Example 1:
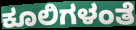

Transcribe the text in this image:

ಕೂಲಿಗಳಂತೆ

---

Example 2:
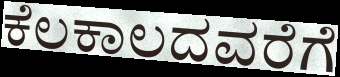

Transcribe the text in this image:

ಕೆಲಕಾಲದವರೆಗೆ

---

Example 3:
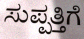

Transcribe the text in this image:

ಸುಪ್ಪತ್ತಿಗೆ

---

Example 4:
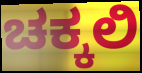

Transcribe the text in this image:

ಚಕ್ಕಲಿ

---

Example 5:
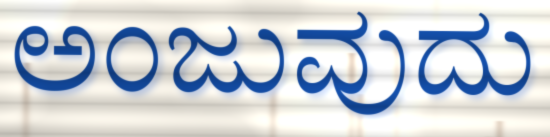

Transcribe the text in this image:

ಅಂಜುವುದು